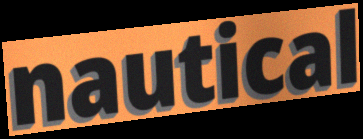
nautical